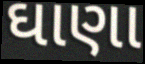
ઘાણા